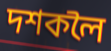
দশকলৈ